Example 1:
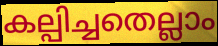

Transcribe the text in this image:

കല്പിച്ചതെല്ലാം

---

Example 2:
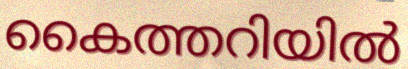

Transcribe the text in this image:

കൈത്തറിയിൽ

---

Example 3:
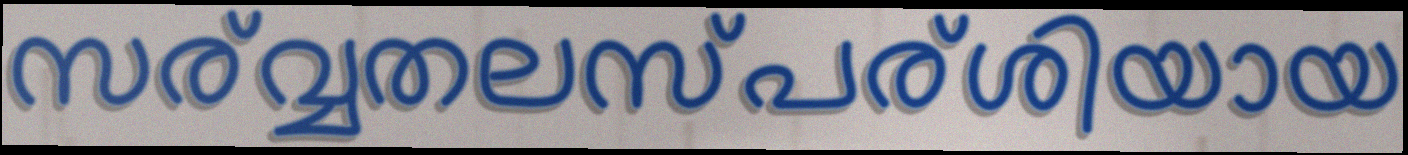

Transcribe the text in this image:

സര്വ്വതലസ്പര്ശിയായ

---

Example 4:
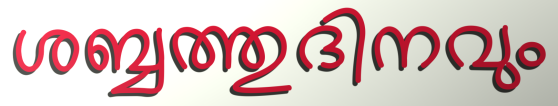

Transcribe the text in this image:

ശബ്ബത്തുദിനവും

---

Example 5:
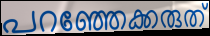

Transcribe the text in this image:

പറഞ്ഞേക്കരുത്